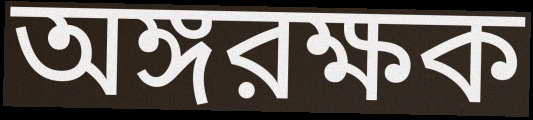
অঙ্গরক্ষক